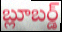
బ్లూబర్డ్